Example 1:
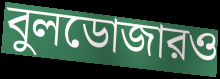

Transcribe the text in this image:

বুলডোজারও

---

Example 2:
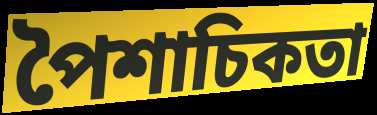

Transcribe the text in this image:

পৈশাচিকতা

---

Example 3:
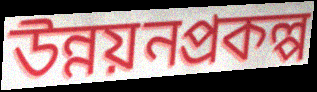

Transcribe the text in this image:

উন্নয়নপ্রকল্প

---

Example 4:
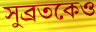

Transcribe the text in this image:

সুব্রতকেও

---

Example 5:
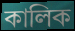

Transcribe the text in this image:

কালিক